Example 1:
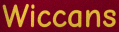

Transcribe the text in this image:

Wiccans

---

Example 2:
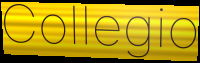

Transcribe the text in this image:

Collegio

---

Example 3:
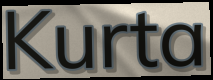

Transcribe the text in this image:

Kurta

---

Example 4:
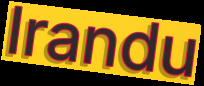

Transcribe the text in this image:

Irandu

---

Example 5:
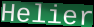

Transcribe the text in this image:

Helier